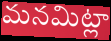
మనమిట్లా